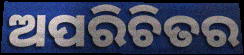
ଅପରିଚିତର